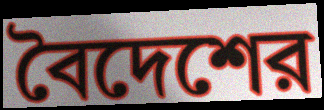
বৈদেশের